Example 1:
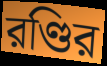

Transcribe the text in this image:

রণ্ডির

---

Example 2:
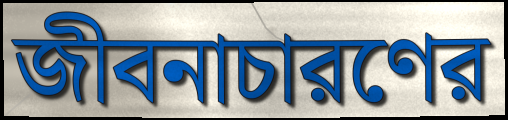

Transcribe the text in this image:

জীবনাচারণের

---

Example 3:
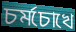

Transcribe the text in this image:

চর্মচোখে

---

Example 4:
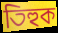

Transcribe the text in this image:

তিহুক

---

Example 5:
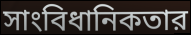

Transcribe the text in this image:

সাংবিধানিকতার